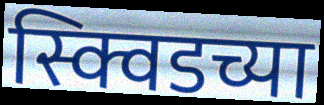
स्क्विडच्या